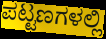
ಪಟ್ಟಣಗಳಲ್ಲಿ